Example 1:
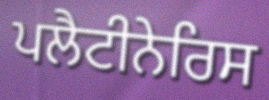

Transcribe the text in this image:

ਪਲੈਟੀਨੇਰਿਸ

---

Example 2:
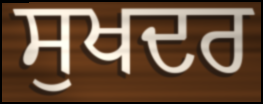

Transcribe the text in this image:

ਸੁਖਦਰ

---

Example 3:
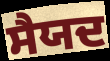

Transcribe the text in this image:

ਸੈਯਦ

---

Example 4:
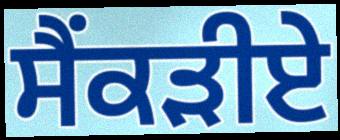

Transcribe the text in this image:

ਸੈਂਕੜੀਏ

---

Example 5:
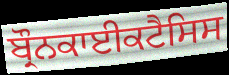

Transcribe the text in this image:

ਬ੍ਰੌਨਕਾਈਕਟੈਸਿਸ